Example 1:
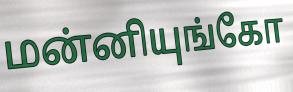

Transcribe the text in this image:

மன்னியுங்கோ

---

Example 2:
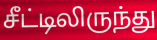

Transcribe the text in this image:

சீட்டிலிருந்து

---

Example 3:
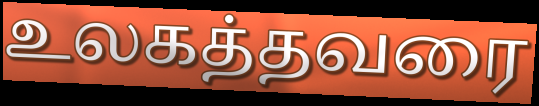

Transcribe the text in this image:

உலகத்தவரை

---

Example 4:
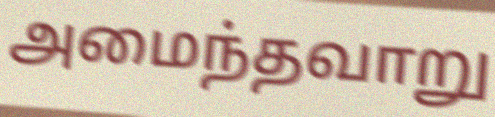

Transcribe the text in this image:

அமைந்தவாறு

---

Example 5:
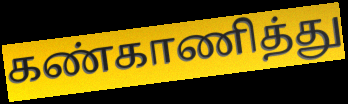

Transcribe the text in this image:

கண்காணித்து